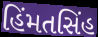
હિંમતસિંહ